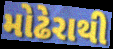
મોઢેરાથી